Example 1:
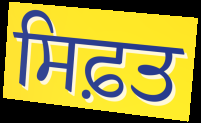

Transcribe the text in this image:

ਸਿਫ਼ਤ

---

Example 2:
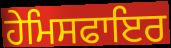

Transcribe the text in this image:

ਹੇਮਿਸਫਾਇਰ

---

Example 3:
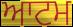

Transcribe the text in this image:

ਆਟਮ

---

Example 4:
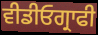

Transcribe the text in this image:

ਵੀਡੀਓਗ੍ਰਾਫੀ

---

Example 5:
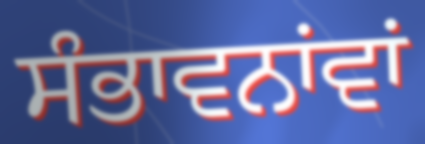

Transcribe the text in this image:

ਸੰਭਾਵਨਾਂਵਾਂ